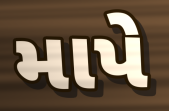
માપે